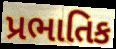
પ્રભાતિક